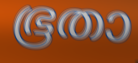
ഭൂതാ